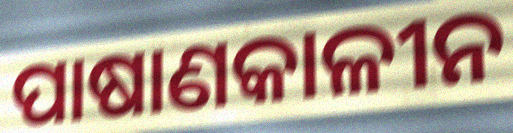
ପାଷାଣକାଳୀନ